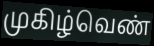
முகிழ்வெண்